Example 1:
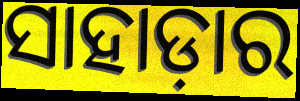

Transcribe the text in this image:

ସାହାଡ଼ାର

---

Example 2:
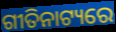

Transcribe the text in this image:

ଗୀତିନାଟ୍ୟରେ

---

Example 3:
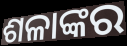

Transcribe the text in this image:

ଶଳାଙ୍କର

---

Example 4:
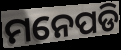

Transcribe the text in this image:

ମନେପଡି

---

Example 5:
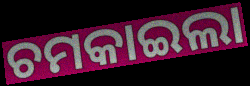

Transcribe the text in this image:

ଚମକାଇଲା